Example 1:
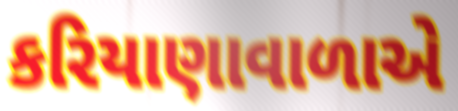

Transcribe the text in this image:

કરિયાણાવાળાએ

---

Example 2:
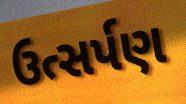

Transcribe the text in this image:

ઉત્સર્પણ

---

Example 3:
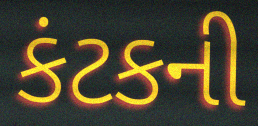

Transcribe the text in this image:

કંટકની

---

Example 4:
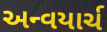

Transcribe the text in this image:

અન્વયાર્ચ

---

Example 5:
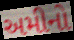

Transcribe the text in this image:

અમીનો